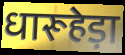
धारूहेड़ा